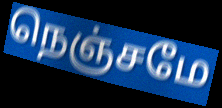
நெஞ்சமே